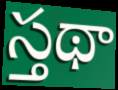
స్తథా